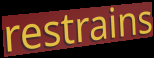
restrains